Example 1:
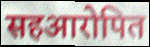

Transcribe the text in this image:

सहआरोपित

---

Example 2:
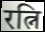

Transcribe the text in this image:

रत्नि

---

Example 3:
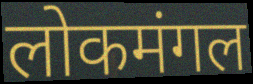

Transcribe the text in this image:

लोकमंगल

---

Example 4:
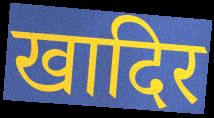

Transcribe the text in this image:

खादिर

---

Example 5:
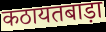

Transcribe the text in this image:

कठायतबाड़ा